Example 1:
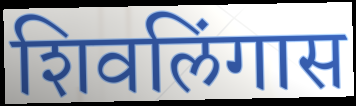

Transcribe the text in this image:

शिवलिंगास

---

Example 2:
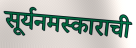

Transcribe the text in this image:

सूर्यनमस्काराची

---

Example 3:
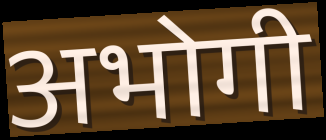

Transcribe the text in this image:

अभोगी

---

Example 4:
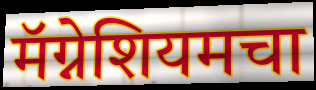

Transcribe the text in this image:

मॅग्नेशियमचा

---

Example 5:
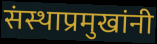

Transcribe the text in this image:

संस्थाप्रमुखांनी